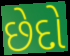
છેદો